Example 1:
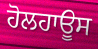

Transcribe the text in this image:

ਹੋਲਹਾਊਸ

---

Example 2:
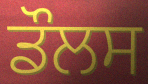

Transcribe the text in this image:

ਡੌਲਸ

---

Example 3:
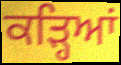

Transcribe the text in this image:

ਕੜ੍ਹਿਆਂ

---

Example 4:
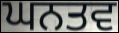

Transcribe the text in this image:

ਘਨਤਵ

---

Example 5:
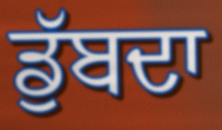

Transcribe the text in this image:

ਡੁੱਬਦਾ